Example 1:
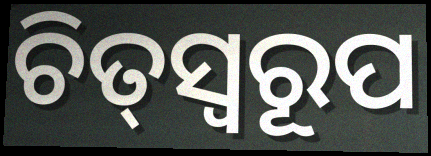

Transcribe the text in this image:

ଚିତ୍‌ସ୍ୱରୂପ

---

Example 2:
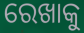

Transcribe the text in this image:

ରେଖାକୁ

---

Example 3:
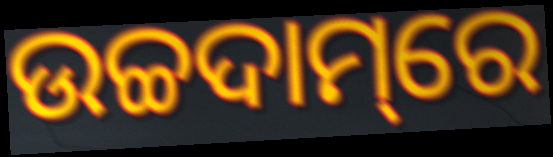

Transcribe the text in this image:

ଉଚ୍ଚଦାମ୍‌ରେ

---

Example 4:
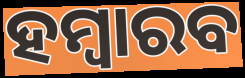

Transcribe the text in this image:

ହମ୍ବାରବ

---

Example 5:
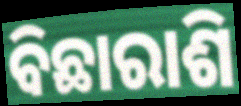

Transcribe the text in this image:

ବିଛାରାଶି